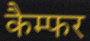
कैम्फर